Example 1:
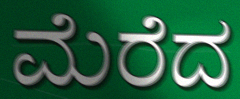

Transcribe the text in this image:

ಮೆರೆದ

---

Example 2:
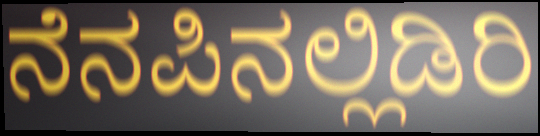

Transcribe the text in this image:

ನೆನಪಿನಲ್ಲಿಡಿರಿ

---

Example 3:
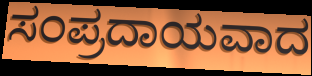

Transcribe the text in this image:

ಸಂಪ್ರದಾಯವಾದ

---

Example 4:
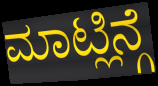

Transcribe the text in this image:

ಮಾಟ್ಲಿನ್ಗೆ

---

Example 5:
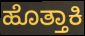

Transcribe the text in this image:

ಹೊತ್ತಾಕಿ